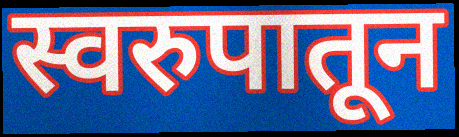
स्वरुपातून